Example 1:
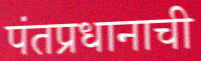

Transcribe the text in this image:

पंतप्रधानाची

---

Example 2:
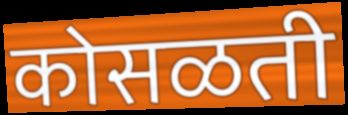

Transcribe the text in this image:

कोसळती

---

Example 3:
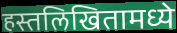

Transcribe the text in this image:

हस्तलिखितामध्ये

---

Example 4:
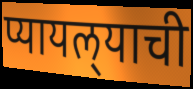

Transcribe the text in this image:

प्यायल्याची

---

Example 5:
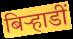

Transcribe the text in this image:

बिर्‍हाडीं